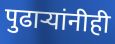
पुढाऱ्यांनीही